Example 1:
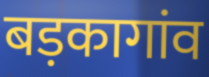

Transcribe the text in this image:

बड़कागांव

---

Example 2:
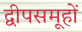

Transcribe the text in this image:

द्वीपसमूहों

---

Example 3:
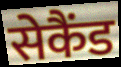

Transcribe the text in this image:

सेकैंड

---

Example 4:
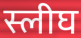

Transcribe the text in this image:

स्लीघ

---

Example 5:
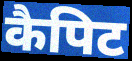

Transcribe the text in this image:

कैपिट